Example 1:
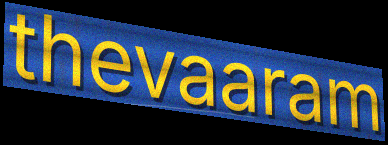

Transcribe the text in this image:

thevaaram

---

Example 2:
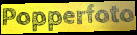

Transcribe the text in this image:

Popperfoto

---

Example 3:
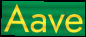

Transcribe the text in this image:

Aave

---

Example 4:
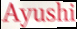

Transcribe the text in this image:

Ayushi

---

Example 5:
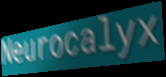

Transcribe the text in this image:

Neurocalyx